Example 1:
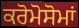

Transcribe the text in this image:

ਕਰੋਮੋਸੋਮਾਂ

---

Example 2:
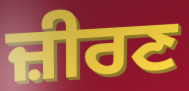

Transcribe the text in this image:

ਜ਼ੀਰਣ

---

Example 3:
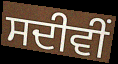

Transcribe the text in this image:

ਸਦੀਵੀਂ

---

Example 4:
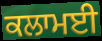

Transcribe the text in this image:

ਕਲਾਮਈ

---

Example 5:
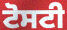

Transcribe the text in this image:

ਟੋਸਟੀ